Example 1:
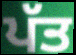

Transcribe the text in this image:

ਪੱਤ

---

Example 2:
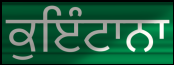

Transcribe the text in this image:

ਕੁਇੰਟਾਨਾ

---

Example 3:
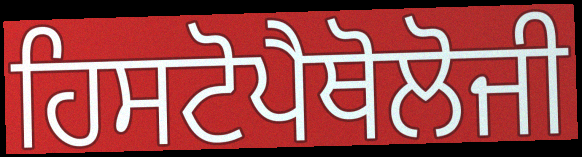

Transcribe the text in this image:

ਹਿਸਟੋਪੈਥੋਲੋਜੀ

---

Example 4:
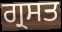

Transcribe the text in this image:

ਗ੍ਰਸਤ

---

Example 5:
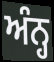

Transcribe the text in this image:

ਅੰਨ੍ਹ